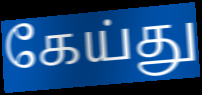
கேய்து